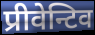
प्रीवेन्टिव